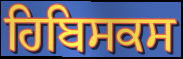
ਹਿਬਿਸਕਸ